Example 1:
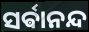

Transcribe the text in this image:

ସର୍ଵାନନ୍ଦ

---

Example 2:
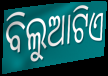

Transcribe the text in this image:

ବିଲୁଆଟିଏ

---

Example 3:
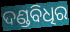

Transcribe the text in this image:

ଦଣ୍ଡବିଧିର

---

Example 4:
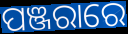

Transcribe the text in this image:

ପଞ୍ଜରାରେ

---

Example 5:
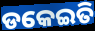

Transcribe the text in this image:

ଡକେଇତି